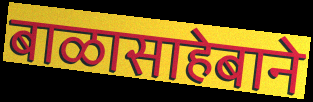
बाळासाहेबाने